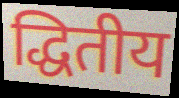
द्धितीय